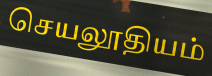
செயலூதியம்